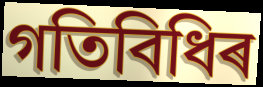
গতিবিধিৰ